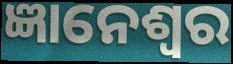
ଜ୍ଞାନେଶ୍ୱର